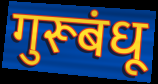
गुरूबंधू